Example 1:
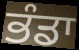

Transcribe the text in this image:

ਭੰਡਾ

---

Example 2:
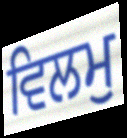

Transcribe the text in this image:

ਵਿਲਮੁ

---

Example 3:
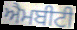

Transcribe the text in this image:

ਐਮਬੀਟੀ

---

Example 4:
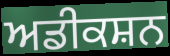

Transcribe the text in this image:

ਅਡੀਕਸ਼ਨ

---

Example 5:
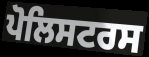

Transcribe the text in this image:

ਪੋਲਿਸਟਰਸ